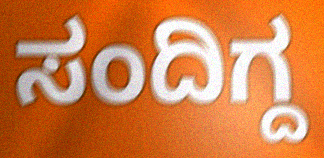
ಸಂದಿಗ್ದ